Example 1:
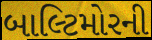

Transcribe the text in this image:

બાલ્ટિમોરની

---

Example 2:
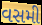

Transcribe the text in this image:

વસમી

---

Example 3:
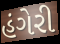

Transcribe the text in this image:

હંગેરી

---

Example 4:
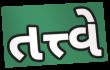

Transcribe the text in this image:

તત્ત્વે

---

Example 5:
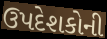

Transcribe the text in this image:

ઉપદેશકોની